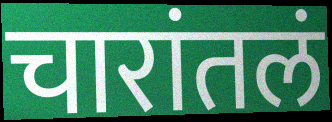
चारांतलं